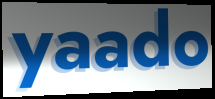
yaado